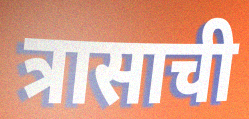
त्रासाची